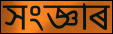
সংজ্ঞাৰ